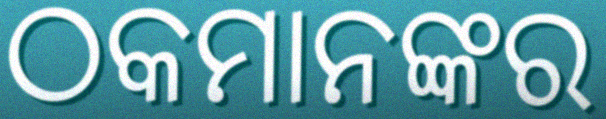
ଠକମାନଙ୍କର